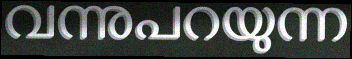
വന്നുപറയുന്ന